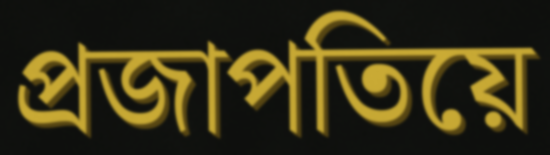
প্ৰজাপতিয়ে